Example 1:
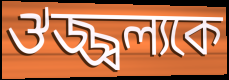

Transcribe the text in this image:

ঔজ্জ্বল্যকে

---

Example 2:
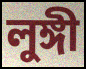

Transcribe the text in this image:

লুঙ্গী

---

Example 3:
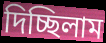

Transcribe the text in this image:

দিচ্ছিলাম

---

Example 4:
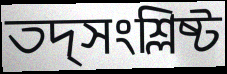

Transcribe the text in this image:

তদ্‌সংশ্লিষ্ট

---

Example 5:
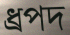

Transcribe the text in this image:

ধ্রপদ